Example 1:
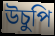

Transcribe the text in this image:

উচুপি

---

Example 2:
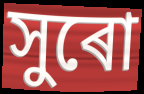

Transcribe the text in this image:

সুৰো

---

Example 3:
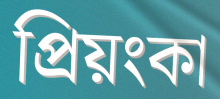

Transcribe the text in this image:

প্ৰিয়ংকা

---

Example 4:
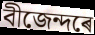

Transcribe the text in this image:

বীজেন্দৰে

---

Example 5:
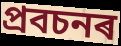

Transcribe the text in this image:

প্ৰবচনৰ